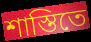
শাস্তিতে